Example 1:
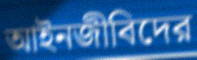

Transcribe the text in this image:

আইনজীবিদের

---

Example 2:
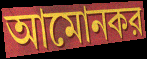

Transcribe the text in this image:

আমোনকর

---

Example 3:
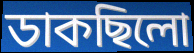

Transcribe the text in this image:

ডাকছিলো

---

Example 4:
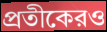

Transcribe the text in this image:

প্রতীকেরও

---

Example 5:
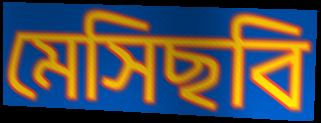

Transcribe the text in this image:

মেসিছবি